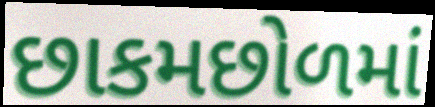
છાકમછોળમાં